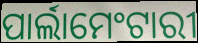
ପାର୍ଲାମେଂଟାରୀ